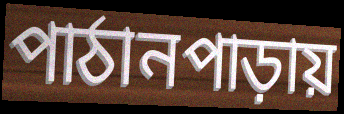
পাঠানপাড়ায়